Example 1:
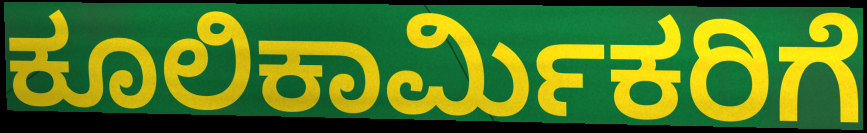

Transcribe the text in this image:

ಕೂಲಿಕಾರ್ಮಿಕರಿಗೆ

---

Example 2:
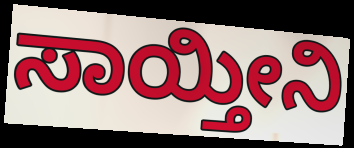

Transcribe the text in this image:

ಸಾಯ್ತೀನಿ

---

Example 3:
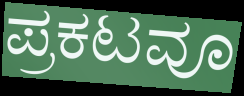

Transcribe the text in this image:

ಪ್ರಕಟವೂ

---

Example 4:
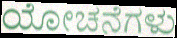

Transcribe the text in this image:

ಯೋಚನೆಗಳು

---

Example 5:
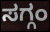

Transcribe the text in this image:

ಸಗ್ಗಂ